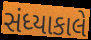
સંધ્યાકાલે